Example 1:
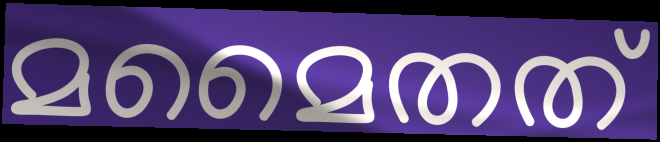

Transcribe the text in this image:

മമൈതത്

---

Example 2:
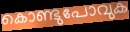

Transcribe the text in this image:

കൊണ്ടുപോവുക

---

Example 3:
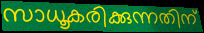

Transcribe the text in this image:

സാധൂകരിക്കുന്നതിന്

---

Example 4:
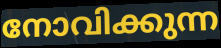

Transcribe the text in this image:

നോവിക്കുന്ന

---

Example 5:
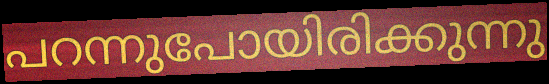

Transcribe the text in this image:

പറന്നുപോയിരിക്കുന്നു